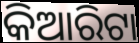
କିଆରିଟା